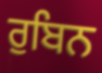
ਰੁਬਿਨ